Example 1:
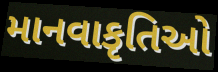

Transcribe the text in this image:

માનવાકૃતિઓ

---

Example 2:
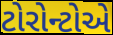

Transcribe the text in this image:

ટોરોન્ટોએ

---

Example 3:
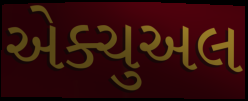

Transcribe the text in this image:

એક્ચુઅલ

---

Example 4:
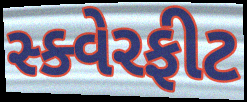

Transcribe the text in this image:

સ્ક્વેરફીટ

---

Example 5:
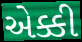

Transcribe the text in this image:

એક્કી